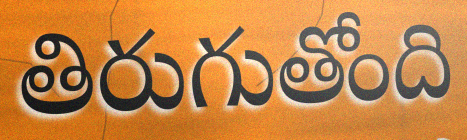
తిరుగుతోంది